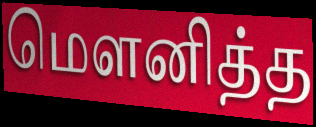
மௌனித்த